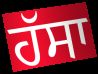
ਹੱਸਾ